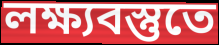
লক্ষ্যবস্তুতে